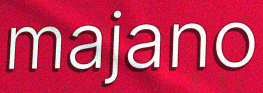
majano